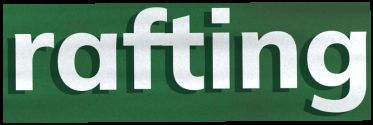
rafting